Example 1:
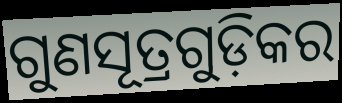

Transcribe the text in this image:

ଗୁଣସୂତ୍ରଗୁଡ଼ିକର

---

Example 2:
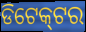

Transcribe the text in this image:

ଡିଟେକ୍‌ଟର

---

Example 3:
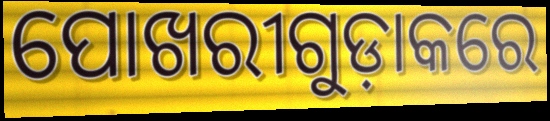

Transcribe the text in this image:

ପୋଖରୀଗୁଡ଼ାକରେ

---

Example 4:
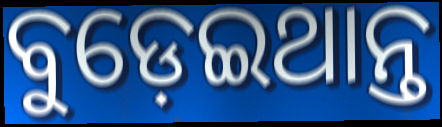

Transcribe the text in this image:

ବୁଡ଼େଇଥାନ୍ତ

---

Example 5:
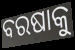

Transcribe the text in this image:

ବରଷାକୁ